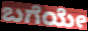
ಬಗೆಯೇ